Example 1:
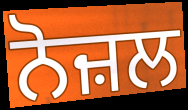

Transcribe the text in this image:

ਨੋਜ਼ਲ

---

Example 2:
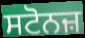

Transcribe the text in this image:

ਸਟੋਨਜ਼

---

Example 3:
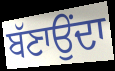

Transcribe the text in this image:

ਬੱਣਾਉਂਦਾ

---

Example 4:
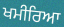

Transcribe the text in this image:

ਖਮੀਰਿਆ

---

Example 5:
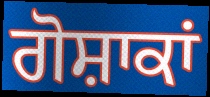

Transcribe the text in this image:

ਗੋਸ਼ਾਕਾਂ